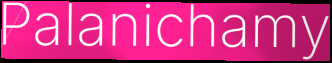
Palanichamy